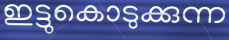
ഇട്ടുകൊടുക്കുന്ന